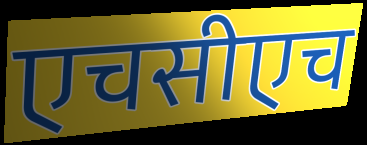
एचसीएच